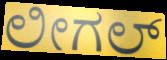
ಲೀಗಲ್